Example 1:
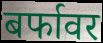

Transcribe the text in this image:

बर्फावर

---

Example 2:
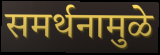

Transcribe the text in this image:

समर्थनामुळे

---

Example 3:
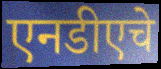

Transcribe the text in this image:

एनडीएचे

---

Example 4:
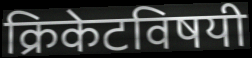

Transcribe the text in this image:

क्रिकेटविषयी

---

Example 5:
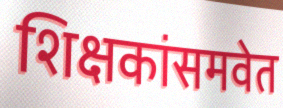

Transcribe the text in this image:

शिक्षकांसमवेत